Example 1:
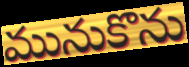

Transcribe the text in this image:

మునుకొను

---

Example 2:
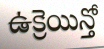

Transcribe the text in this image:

ఉక్రెయిన్తో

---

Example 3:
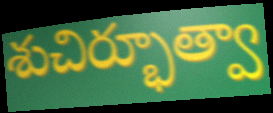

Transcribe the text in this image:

శుచిర్భూత్వా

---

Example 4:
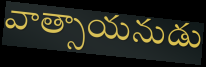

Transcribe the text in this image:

వాత్సాయనుడు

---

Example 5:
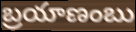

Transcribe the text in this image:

బ్రయాణంబు